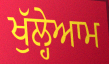
ਖੁੱਲ੍ਹੇਆਮ